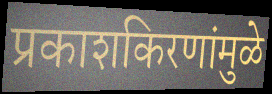
प्रकाशकिरणांमुळे